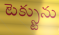
టెక్స్టును